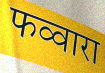
फव्वारा